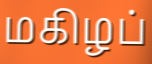
மகிழப்